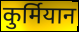
कुर्मियान